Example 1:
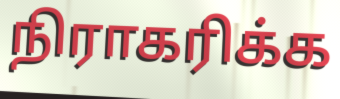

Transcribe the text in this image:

நிராகரிக்க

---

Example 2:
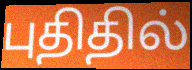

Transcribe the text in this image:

புதிதில்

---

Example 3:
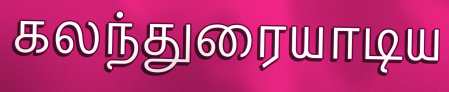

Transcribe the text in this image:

கலந்துரையாடிய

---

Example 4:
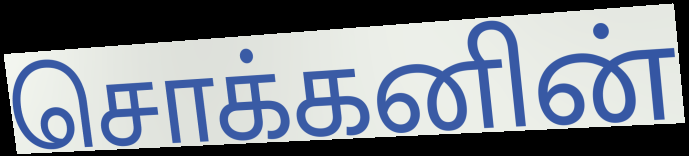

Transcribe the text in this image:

சொக்கனின்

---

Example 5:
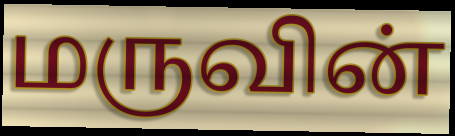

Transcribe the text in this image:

மருவின்